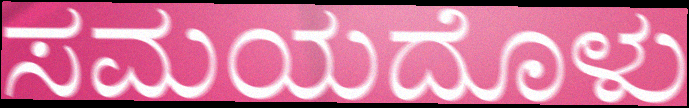
ಸಮಯದೊಳು